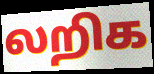
லறிக